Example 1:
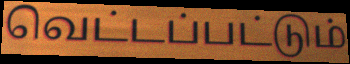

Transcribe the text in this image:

வெட்டப்பட்டும்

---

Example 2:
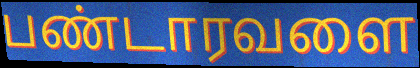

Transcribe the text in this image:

பண்டாரவளை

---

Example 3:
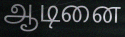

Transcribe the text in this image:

ஆடினை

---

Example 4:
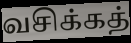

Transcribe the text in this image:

வசிக்கத்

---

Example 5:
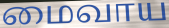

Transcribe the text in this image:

மைவாய